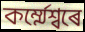
কৰ্ম্মেশ্বৰে